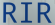
RIR